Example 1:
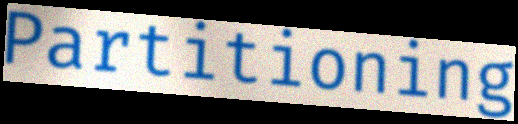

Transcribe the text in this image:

Partitioning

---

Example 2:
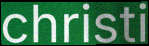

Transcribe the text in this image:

christi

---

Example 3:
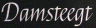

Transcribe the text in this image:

Damsteegt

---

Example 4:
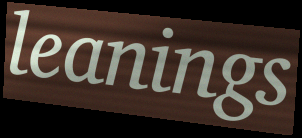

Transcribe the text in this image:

leanings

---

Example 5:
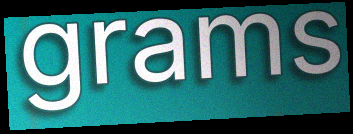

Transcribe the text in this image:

grams